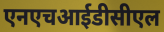
एनएचआईडीसीएल